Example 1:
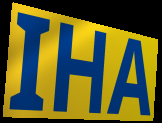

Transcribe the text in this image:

IHA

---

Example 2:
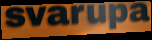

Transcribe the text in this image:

svarupa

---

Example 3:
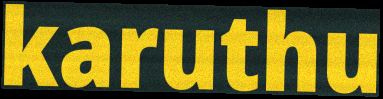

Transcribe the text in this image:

karuthu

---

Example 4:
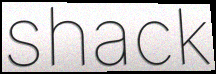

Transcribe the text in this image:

shack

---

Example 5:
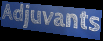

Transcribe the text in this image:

Adjuvants